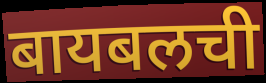
बायबलची